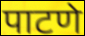
पाटणे